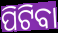
ପିଟିବା